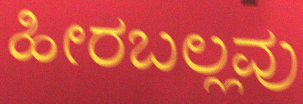
ಹೀರಬಲ್ಲವು